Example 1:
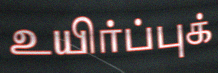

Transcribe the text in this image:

உயிர்ப்புக்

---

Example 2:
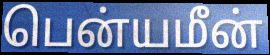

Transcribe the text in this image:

பென்யமீன்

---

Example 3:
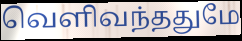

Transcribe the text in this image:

வெளிவந்ததுமே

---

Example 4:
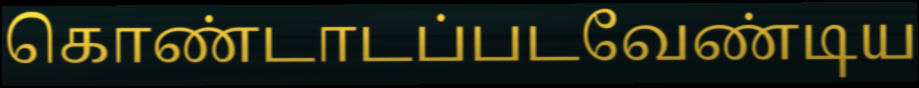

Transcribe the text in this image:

கொண்டாடப்படவேண்டிய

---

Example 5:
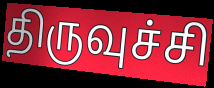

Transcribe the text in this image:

திருவுச்சி